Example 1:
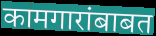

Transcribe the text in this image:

कामगारांबाबत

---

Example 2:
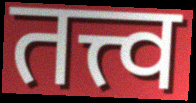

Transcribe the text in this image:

तत्त्व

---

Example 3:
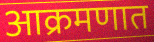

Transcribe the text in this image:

आक्रमणात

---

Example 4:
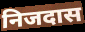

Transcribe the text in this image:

निजदास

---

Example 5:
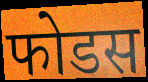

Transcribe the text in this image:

फोडस